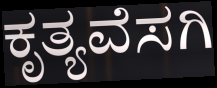
ಕೃತ್ಯವೆಸಗಿ